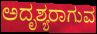
ಅದೃಶ್ಯರಾಗುವ